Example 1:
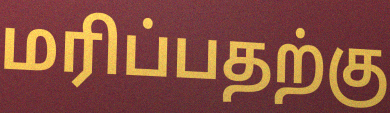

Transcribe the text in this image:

மரிப்பதற்கு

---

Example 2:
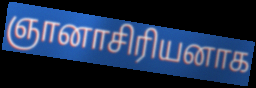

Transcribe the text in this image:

ஞானாசிரியனாக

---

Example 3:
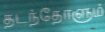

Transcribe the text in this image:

தடந்தோளும்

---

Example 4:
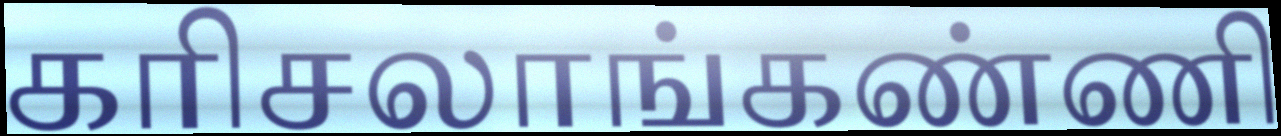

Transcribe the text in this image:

கரிசலாங்கண்ணி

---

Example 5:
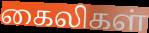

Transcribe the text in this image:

கைலிகள்